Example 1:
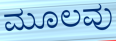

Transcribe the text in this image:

ಮೂಲವು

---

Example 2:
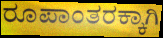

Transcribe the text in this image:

ರೂಪಾಂತರಕ್ಕಾಗಿ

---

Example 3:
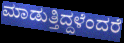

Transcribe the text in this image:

ಮಾಡುತ್ತಿದ್ದಳೆಂದರೆ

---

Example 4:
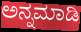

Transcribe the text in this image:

ಅನ್ನಮಾಡಿ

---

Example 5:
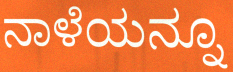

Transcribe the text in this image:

ನಾಳೆಯನ್ನೂ